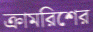
ক্রামরিশের